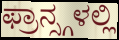
ಫ್ರಾನ್ಸ್ಗಳಲ್ಲಿ